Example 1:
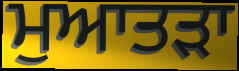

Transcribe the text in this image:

ਮੁਆਤੜਾ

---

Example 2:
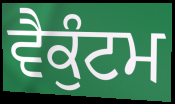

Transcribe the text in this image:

ਵੈਕੁੰਟਮ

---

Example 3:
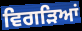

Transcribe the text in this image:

ਵਿਗੜਿਆਂ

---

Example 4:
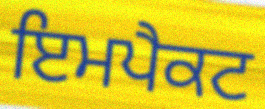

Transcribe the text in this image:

ਇਮਪੈਕਟ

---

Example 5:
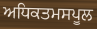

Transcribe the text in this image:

ਅਧਿਕਤਮਸਪੂਲ